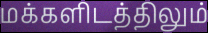
மக்களிடத்திலும்